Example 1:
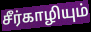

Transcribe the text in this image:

சீர்காழியும்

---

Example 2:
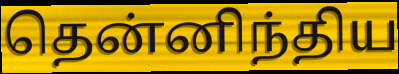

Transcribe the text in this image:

தென்னிந்திய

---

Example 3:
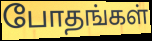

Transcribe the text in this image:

போதங்கள்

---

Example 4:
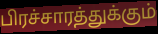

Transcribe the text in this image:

பிரச்சாரத்துக்கும்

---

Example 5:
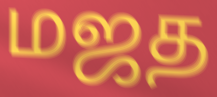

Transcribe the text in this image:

மஜத